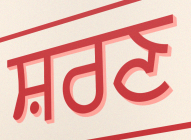
ਸ਼ਰਣ